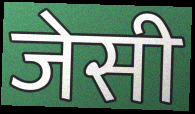
जेसी